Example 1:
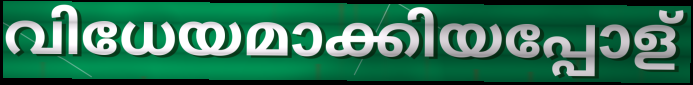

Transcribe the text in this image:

വിധേയമാക്കിയപ്പോള്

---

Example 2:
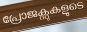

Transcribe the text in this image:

പ്രോജക്റ്റുകളുടെ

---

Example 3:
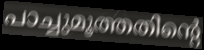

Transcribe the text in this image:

പാച്ചുമൂത്തതിന്റെ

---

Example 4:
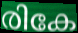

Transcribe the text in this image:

രികേ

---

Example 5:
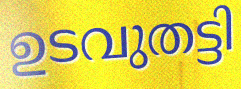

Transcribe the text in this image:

ഉടവുതട്ടി